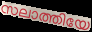
സലാത്തിയേ